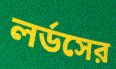
লর্ডসের